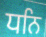
ਧਨਿ